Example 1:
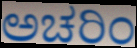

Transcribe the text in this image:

ಅಚರಿಂ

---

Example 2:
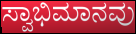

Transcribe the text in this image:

ಸ್ವಾಭಿಮಾನವು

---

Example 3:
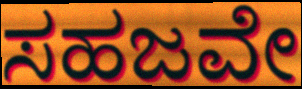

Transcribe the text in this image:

ಸಹಜವೇ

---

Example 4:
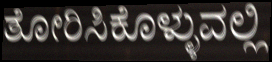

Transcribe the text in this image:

ತೋರಿಸಿಕೊಳ್ಳುವಲ್ಲಿ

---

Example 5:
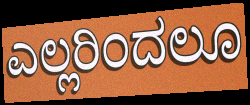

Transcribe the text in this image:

ಎಲ್ಲರಿಂದಲೂ